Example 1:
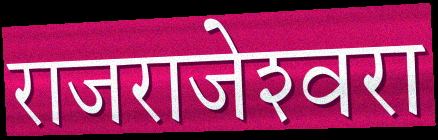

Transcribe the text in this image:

राजराजेश्वरा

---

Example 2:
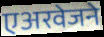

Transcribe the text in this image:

एअरवेजने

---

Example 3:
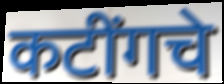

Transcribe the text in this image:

कटींगचे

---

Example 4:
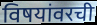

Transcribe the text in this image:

विषयांवरची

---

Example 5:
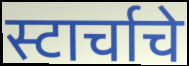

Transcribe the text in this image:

स्टार्चाचे